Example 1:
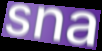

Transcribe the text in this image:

sna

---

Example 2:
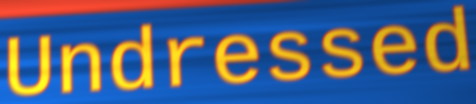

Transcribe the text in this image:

Undressed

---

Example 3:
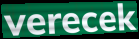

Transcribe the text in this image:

verecek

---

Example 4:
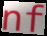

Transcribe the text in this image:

nf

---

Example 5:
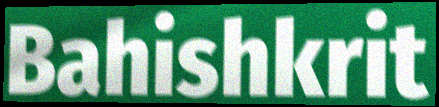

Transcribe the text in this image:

Bahishkrit